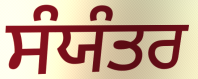
ਸੰਯੰਤਰ